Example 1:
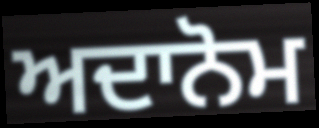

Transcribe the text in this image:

ਅਦਾਨੋਮ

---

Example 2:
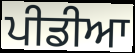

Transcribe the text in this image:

ਪੀਡੀਆ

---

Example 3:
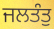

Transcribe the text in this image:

ਜਲਤੰਤੁ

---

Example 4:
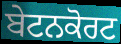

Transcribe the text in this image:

ਬੇਟਨਕੋਰਟ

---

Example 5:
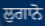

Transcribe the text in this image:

ਲੁਗਾਨੋ